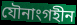
যৌনাংগহীন